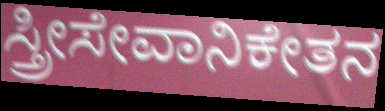
ಸ್ತ್ರೀಸೇವಾನಿಕೇತನ